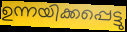
ഉന്നയിക്കപ്പെട്ടു